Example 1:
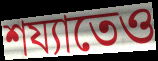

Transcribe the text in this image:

শয্যাতেও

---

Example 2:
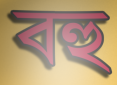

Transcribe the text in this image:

বহু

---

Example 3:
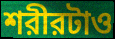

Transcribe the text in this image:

শরীরটাও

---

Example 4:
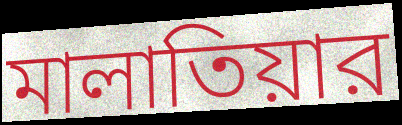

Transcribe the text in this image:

মালাতিয়ার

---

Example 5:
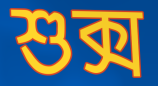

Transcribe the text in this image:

শুক্স